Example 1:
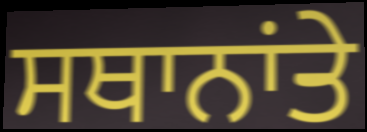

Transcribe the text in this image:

ਸਥਾਨਾਂਤੇ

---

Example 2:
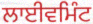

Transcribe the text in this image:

ਲਾਈਵਮਿੰਟ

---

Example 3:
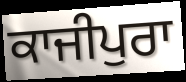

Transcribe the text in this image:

ਕਾਜੀਪੁਰਾ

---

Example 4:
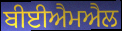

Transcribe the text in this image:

ਬੀਈਐਮਐਲ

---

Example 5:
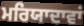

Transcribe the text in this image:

ਮਰਿਯਾਦਾਵਾਂ